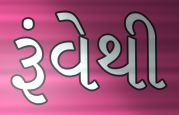
રૂંવેથી